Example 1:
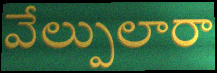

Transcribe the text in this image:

వేల్పులారా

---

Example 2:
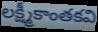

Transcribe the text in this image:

లక్ష్మీకాంతకవి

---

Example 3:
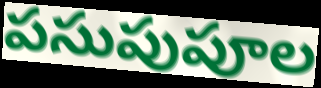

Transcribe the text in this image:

పసుపుపూల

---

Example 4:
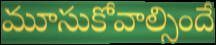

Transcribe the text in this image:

మూసుకోవాల్సిందే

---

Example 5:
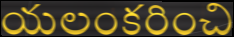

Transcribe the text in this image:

యలంకరించి